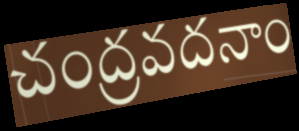
చంద్రవదనాం